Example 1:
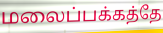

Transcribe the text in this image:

மலைப்பக்கத்தே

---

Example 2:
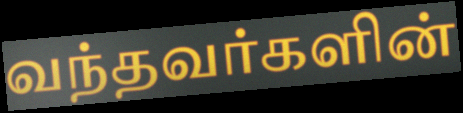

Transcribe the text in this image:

வந்தவர்களின்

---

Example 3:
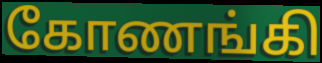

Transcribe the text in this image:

கோணங்கி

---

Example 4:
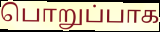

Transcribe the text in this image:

பொறுப்பாக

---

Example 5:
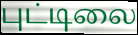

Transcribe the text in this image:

புட்டிலை